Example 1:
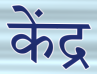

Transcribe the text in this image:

केंद्र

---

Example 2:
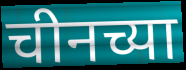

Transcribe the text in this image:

चीनच्या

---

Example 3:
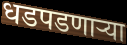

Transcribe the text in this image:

धडपडणाऱ्या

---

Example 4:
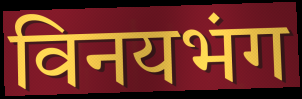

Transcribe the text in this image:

विनयभंग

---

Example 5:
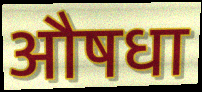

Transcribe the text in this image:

औषधा